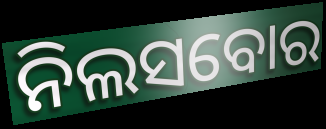
ନିଲସବୋର